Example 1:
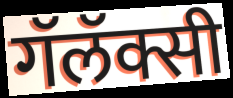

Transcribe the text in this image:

गॅलॅक्सी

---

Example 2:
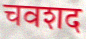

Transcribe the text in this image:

चवशद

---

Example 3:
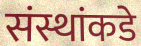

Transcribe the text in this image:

संस्थांकडे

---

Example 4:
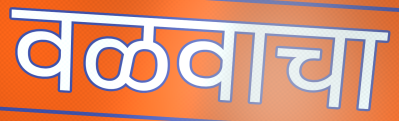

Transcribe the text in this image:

वळवाचा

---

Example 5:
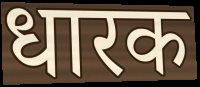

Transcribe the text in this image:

धारक